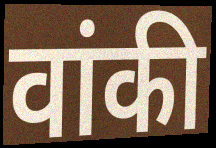
वांकी